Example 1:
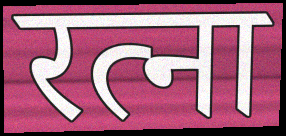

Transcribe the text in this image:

रत्ना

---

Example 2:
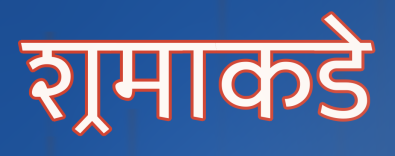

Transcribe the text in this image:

श्रमाकडे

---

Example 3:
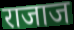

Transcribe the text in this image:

राजाज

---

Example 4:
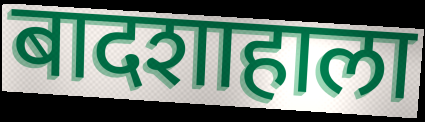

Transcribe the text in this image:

बादशाहाला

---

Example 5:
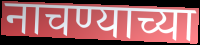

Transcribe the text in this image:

नाचण्याच्या